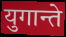
युगान्ते